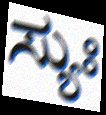
ಸ್ಯುಃ